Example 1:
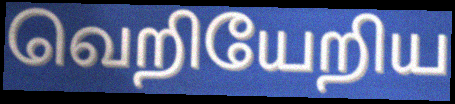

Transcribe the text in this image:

வெறியேறிய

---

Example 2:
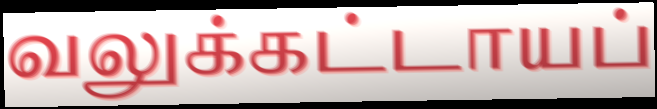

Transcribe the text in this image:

வலுக்கட்டாயப்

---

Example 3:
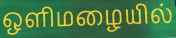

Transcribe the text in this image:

ஒளிமழையில்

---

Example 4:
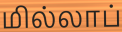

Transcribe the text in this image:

மில்லாப்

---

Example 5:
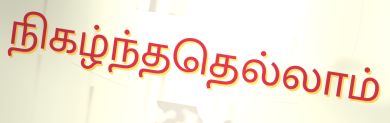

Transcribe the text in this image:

நிகழ்ந்ததெல்லாம்